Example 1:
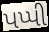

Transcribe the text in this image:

પપ્પી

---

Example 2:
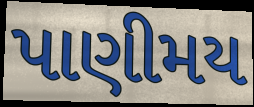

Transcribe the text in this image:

પાણીમય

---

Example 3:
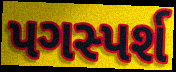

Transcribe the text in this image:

પગસ્પર્શ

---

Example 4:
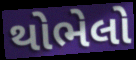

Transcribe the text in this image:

થોભેલો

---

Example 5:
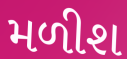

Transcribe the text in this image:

મળીશ